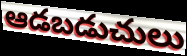
ఆడబడుచులు